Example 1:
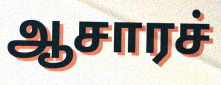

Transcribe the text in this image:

ஆசாரச்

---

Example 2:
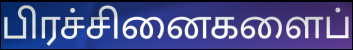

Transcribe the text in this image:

பிரச்சினைகளைப்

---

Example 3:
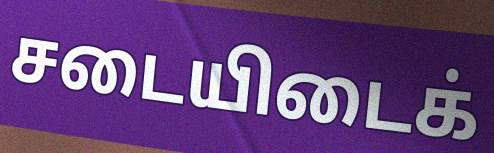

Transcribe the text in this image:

சடையிடைக்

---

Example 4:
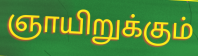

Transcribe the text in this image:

ஞாயிறுக்கும்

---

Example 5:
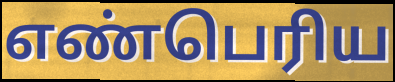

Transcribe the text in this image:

எண்பெரிய